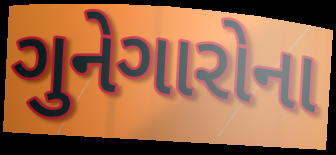
ગુનેગારોના